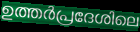
ഉത്തർപ്രദേശിലെ